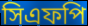
সিএফপি